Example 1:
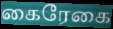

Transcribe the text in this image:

கைரேகை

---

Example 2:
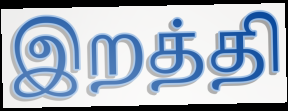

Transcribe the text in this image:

இறத்தி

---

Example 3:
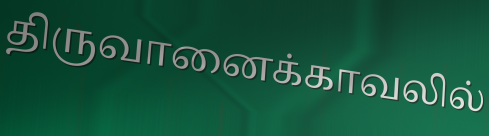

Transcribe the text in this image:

திருவானைக்காவலில்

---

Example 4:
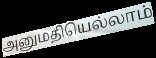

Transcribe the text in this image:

அனுமதியெல்லாம்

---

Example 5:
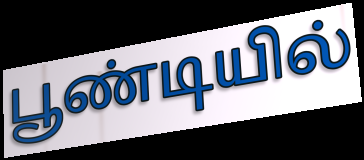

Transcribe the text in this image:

பூண்டியில்